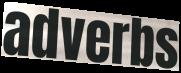
adverbs